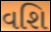
વશિ